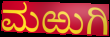
ಮಱುಗಿ